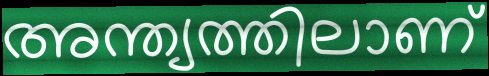
അന്ത്യത്തിലാണ്